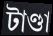
টাণ্ডা